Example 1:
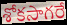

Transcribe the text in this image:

శోకసాగరే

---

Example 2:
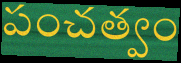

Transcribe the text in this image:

పంచత్వం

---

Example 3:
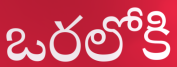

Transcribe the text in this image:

ఒరలోకి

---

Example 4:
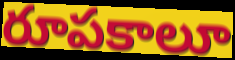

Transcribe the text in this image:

రూపకాలూ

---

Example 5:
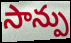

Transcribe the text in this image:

సాన్పు